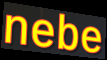
nebe